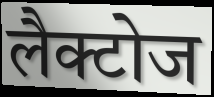
लैक्टोज